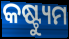
କଷ୍ଟ୍ୟୁମ